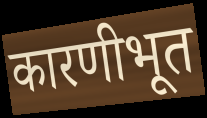
कारणीभूत